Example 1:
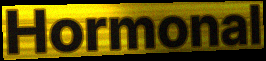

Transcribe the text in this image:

Hormonal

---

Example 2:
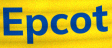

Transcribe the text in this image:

Epcot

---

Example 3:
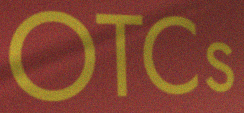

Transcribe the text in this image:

OTCs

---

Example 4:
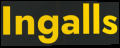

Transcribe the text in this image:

Ingalls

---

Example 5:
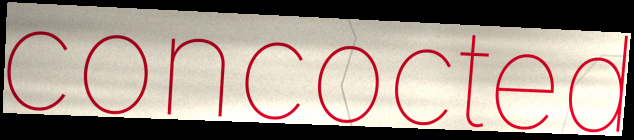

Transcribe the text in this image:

concocted